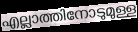
എല്ലാത്തിനോടുമുള്ള